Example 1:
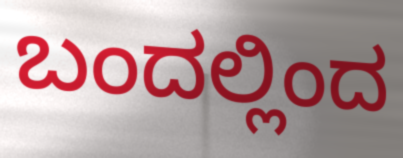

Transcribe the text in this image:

ಬಂದಲ್ಲಿಂದ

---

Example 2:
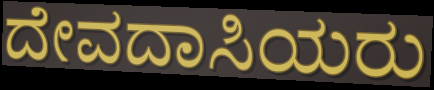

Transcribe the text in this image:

ದೇವದಾಸಿಯರು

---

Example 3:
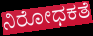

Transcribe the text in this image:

ನಿರೋಧಕತೆ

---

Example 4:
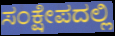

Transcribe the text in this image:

ಸಂಕ್ಷೇಪದಲ್ಲಿ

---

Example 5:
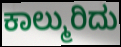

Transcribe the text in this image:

ಕಾಲ್ಮುರಿದು